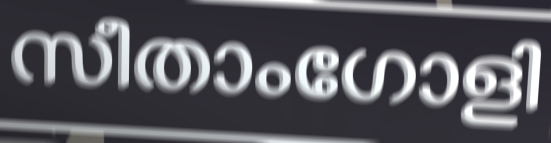
സീതാംഗോളി